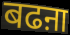
बढऩा